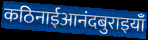
कठिनाईआनंदबुराइयाँ